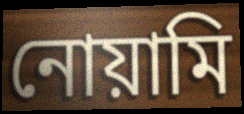
নোয়ামি